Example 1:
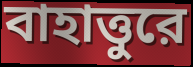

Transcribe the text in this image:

বাহাত্তুরে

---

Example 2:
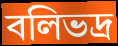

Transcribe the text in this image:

বলিভদ্র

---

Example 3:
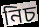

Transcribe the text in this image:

নিচ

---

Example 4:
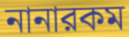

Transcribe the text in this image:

নানারকম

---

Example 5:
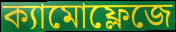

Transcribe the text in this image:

ক্যামোফ্লেজে